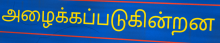
அழைக்கப்படுகின்றன